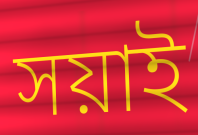
সয়াই